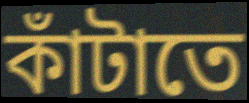
কাঁটাতে